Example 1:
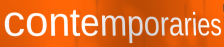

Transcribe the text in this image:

contemporaries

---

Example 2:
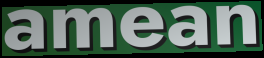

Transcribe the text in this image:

amean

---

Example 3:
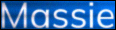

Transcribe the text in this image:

Massie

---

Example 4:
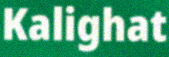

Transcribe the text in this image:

Kalighat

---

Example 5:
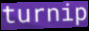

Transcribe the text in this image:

turnip